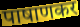
पाषाणकर